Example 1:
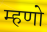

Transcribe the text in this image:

म्हणो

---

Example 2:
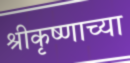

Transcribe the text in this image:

श्रीकृष्णाच्या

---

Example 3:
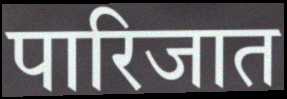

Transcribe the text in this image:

पारिजात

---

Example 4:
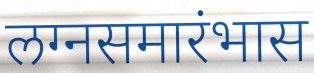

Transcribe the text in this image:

लग्नसमारंभास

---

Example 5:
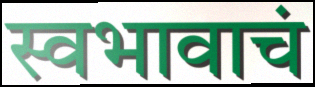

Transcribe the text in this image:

स्वभावाचं